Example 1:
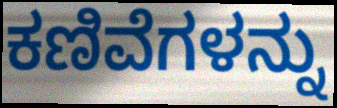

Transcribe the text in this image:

ಕಣಿವೆಗಳನ್ನು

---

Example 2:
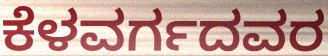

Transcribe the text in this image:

ಕೆಳವರ್ಗದವರ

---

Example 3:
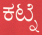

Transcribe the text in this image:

ಕಟ್ನೆ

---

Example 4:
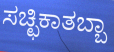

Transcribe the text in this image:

ಸಚ್ಛಿಕಾತಬ್ಬಾ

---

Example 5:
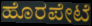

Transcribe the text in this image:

ಹೊರಪೇಟೆ